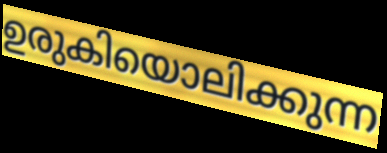
ഉരുകിയൊലിക്കുന്ന